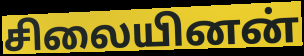
சிலையினன்